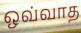
ஒவ்வாத